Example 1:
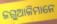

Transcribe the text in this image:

ଜଗୁଆଳିମାନେ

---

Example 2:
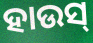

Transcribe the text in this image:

ହାଉସ୍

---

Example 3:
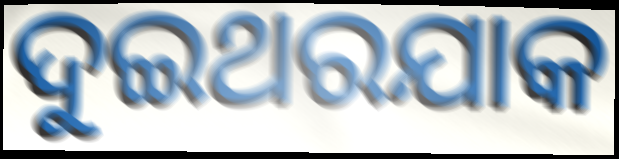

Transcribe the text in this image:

ଦୁଇଥରଯାକ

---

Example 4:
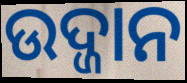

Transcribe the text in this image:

ଉଦ୍ଜାନ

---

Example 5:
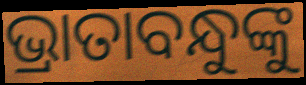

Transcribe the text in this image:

ଭ୍ରାତାବନ୍ଧୁଙ୍କୁ